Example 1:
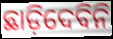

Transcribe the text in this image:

ଛାଡ଼ିଦେବିନି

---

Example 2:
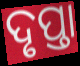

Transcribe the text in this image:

ଦୃପ୍ତା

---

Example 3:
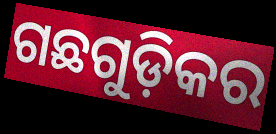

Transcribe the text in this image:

ଗଛଗୁଡ଼ିକର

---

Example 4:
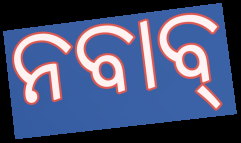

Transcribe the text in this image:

ନବାବ୍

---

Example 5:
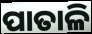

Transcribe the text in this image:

ପାତାଳି